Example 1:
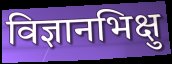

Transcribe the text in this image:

विज्ञानभिक्षु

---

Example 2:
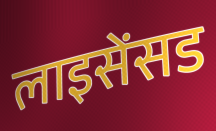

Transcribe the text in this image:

लाइसेंसड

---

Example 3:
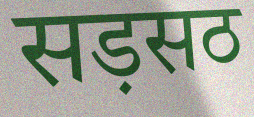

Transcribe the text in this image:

सड़सठ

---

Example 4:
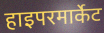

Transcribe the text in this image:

हाइपरमार्केट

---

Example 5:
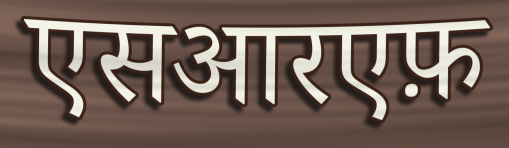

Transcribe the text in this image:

एसआरएफ़